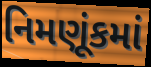
નિમણૂંકમાં